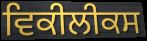
ਵਿਕੀਲੀਕਸ